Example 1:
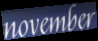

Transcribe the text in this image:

november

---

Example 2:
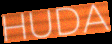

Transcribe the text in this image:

HUDA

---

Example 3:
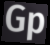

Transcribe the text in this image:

Gp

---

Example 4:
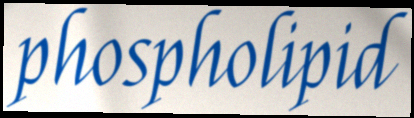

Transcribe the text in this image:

phospholipid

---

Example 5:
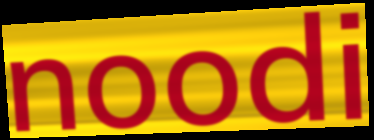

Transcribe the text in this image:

noodi